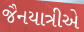
જૈનયાત્રીએ